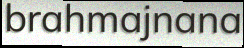
brahmajnana